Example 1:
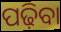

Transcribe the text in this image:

ପଢ଼ିବା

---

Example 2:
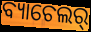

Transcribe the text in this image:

ବ୍ୟାଚେଲର୍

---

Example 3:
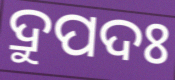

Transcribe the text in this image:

ଦ୍ରୁପଦଃ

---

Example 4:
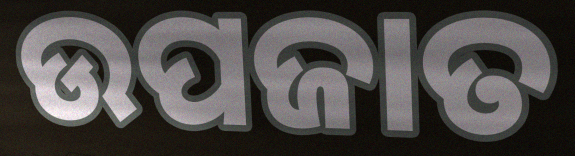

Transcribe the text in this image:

ଉପଜାତ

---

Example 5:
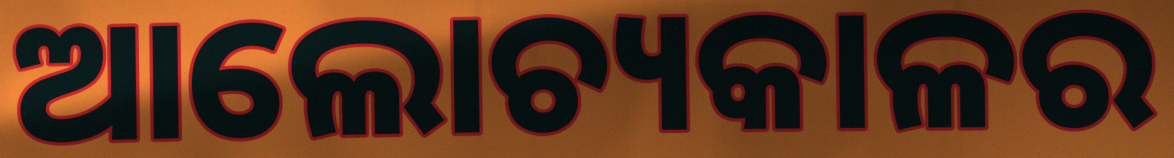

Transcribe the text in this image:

ଆଲୋଚ୍ୟକାଳର